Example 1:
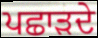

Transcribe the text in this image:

ਪਛਾੜਦੇ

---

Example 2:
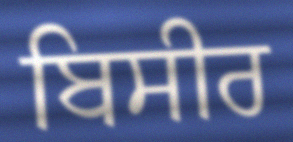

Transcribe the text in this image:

ਬਿਸੀਰ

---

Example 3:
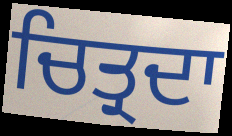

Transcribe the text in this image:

ਚਿਤ੍ਰਦਾ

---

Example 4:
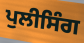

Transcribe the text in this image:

ਪੁਲੀਸਿੰਗ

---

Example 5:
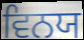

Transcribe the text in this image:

ਵਿਨਯ